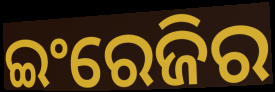
ଇଂରେଜିର